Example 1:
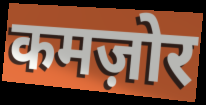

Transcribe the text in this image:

कमज़ोर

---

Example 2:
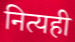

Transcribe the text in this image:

नित्यही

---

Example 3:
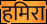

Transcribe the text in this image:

हमिरा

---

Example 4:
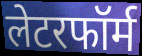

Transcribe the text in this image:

लेटरफॉर्म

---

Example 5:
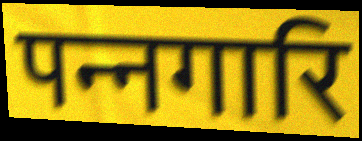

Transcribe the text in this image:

पन्नगारि